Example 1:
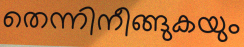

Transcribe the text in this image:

തെന്നിനീങ്ങുകയും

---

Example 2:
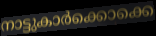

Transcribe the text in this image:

നാട്ടുകാർക്കൊക്കെ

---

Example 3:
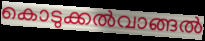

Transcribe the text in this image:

കൊടുക്കൽവാങ്ങൽ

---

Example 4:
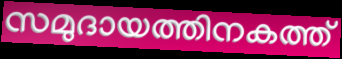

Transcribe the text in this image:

സമുദായത്തിനകത്ത്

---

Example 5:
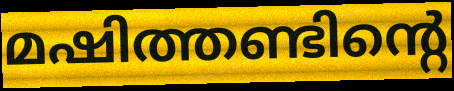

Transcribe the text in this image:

മഷിത്തണ്ടിന്റെ